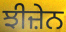
ਝੀਜ਼ੇਨ